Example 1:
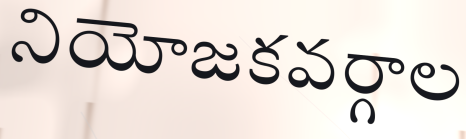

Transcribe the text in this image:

నియోజకవర్గాల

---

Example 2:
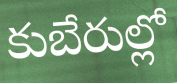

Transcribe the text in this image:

కుబేరుల్లో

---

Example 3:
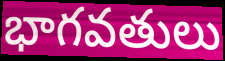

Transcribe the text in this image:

భాగవతులు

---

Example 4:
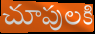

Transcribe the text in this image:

చూపులకి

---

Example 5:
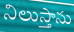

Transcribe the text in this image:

నిలుస్తాను